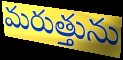
మరుత్తును